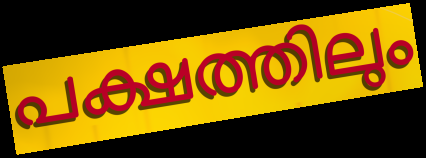
പക്ഷത്തിലും